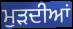
ਮੁੜਦੀਆਂ